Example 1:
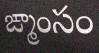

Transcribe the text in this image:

ఙ్మాంసం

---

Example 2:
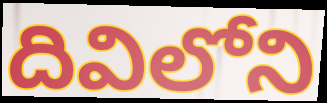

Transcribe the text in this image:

దివిలోని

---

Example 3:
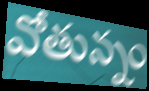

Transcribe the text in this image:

వోతున్నం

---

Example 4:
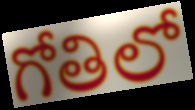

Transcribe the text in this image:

గోతిలో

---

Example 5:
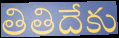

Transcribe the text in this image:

తితిదేకు